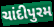
ચાંદીપુરમ